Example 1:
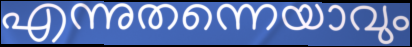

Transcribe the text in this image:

എന്നുതന്നെയാവും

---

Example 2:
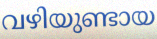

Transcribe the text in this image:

വഴിയുണ്ടായ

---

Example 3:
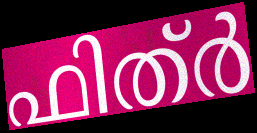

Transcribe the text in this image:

ഫിത്ർ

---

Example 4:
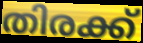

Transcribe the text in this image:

തിരക്ക്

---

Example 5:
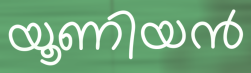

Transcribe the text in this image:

യൂണിയൻ